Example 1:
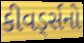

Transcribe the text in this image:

કીવર્ડ્સનો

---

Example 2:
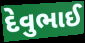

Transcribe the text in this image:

દેવુભાઈ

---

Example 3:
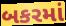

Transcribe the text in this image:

બકરમાં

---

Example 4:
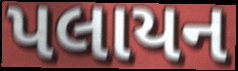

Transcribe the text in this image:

પલાયન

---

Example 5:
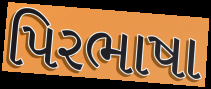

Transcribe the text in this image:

પિરભાષા